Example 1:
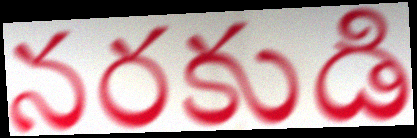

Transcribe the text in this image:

నరకుడి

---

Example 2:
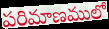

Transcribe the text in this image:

పరిమాణములో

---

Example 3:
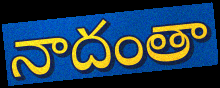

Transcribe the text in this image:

నాదంతా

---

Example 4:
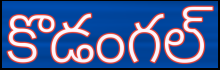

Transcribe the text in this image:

కొడంగల్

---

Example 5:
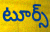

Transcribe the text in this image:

టూర్స్